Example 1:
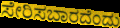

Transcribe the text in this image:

ಸೇರಿಸಬಾರದೆಂದು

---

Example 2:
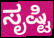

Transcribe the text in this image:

ಸೃಷ್ಟಿ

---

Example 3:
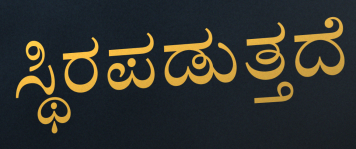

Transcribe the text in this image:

ಸ್ಥಿರಪಡುತ್ತದೆ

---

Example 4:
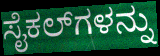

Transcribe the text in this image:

ಸೈಕಲ್‌ಗಳನ್ನು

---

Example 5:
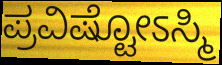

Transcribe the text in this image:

ಪ್ರವಿಷ್ಟೋಽಸ್ಮಿ